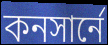
কনসার্নে